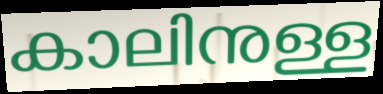
കാലിനുള്ള